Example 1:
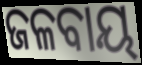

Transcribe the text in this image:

ଜଳବାୟ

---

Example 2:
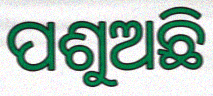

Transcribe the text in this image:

ପଶୁଅଛି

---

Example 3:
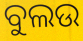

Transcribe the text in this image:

ବୁଲଉ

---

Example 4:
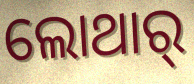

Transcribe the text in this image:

ଲୋଥାର୍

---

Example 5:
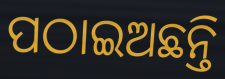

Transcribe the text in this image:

ପଠାଇଅଛନ୍ତି